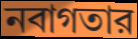
নবাগতার